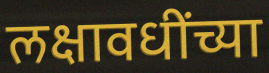
लक्षावधींच्या